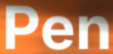
Pen